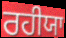
ਰਹੀਯਾ